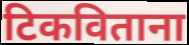
टिकविताना